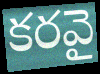
కరవై